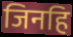
जिनहि